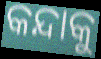
କନ୍ଦାକୁ